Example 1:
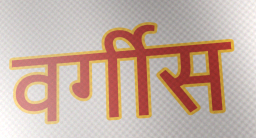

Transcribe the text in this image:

वर्गीस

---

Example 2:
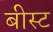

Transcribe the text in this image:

बीस्ट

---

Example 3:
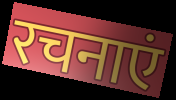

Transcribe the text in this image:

रचनाएं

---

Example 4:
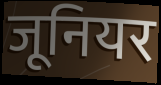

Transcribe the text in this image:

जूनियर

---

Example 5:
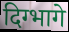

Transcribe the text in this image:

दिग्भागे